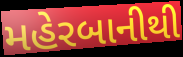
મહેરબાનીથી